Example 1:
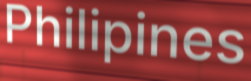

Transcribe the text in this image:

Philipines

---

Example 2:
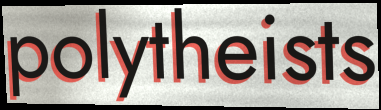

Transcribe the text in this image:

polytheists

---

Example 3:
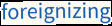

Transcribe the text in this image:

foreignizing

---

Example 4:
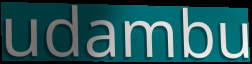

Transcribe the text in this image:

udambu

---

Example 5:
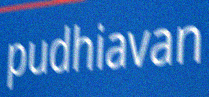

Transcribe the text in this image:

pudhiavan